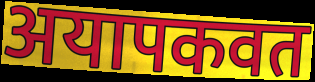
अयापकवत